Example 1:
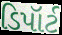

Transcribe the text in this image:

ડિપૉર્ટ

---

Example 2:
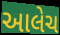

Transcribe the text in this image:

આલેચ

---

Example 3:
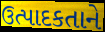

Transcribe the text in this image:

ઉત્પાદકતાને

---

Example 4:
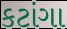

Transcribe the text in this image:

કટાંગા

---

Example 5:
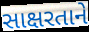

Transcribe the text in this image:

સાક્ષરતાને